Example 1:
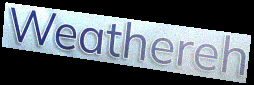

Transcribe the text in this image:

Weathereh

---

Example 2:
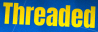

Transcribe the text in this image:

Threaded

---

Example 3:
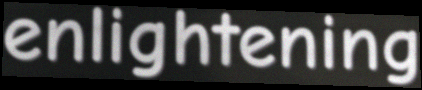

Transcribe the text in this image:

enlightening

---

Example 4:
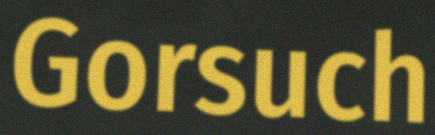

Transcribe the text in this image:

Gorsuch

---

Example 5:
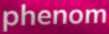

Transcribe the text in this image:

phenom